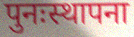
पुनःस्थापना